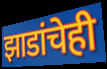
झाडांचेही